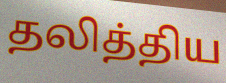
தலித்திய